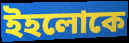
ইহলোকে